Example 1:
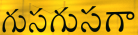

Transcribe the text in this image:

గుసగుసగా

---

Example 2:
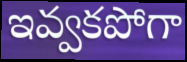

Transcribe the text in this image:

ఇవ్వకపోగా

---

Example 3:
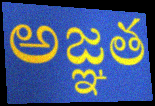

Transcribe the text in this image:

అజ్ఞత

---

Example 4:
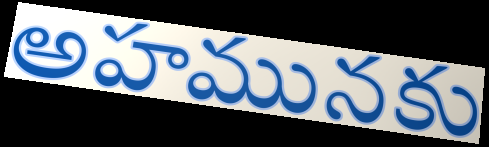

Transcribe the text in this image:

అహమునకు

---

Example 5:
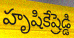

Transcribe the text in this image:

హృషికేష్రెడ్డి